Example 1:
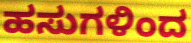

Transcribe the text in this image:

ಹಸುಗಳಿಂದ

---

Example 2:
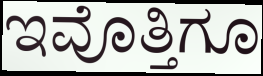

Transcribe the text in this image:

ಇವೊತ್ತಿಗೂ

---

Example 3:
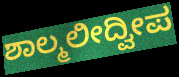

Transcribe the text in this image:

ಶಾಲ್ಮಲೀದ್ವೀಪ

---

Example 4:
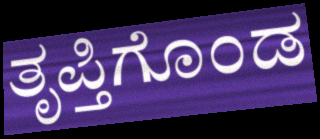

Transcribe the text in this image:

ತೃಪ್ತಿಗೊಂಡ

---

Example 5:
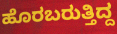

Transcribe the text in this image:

ಹೊರಬರುತ್ತಿದ್ದ